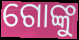
ଗୋଙ୍କୁ